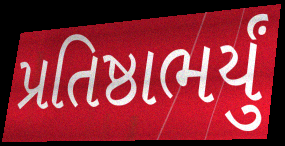
પ્રતિષ્ઠાભર્યું